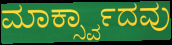
ಮಾರ್ಕ್ಸ್ವಾದವು